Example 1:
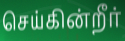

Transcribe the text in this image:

செய்கின்றீர்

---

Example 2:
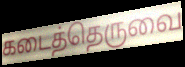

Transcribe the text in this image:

கடைத்தெருவை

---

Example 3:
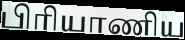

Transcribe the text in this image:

பிரியாணிய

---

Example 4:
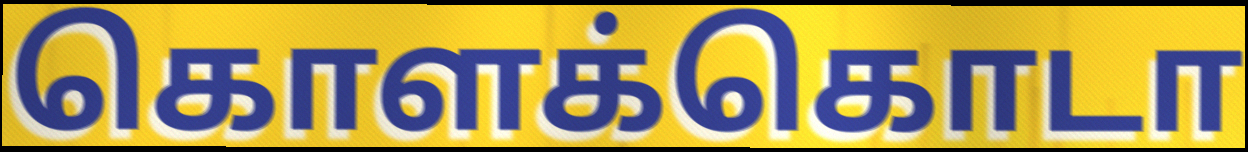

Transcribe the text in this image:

கொளக்கொடா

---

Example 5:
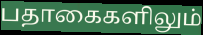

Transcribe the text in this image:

பதாகைகளிலும்